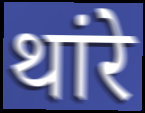
थांरे